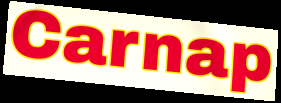
Carnap